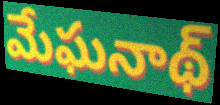
మేఘనాథ్